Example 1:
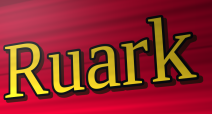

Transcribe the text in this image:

Ruark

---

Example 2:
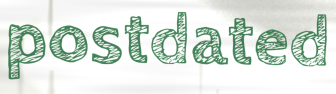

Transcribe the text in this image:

postdated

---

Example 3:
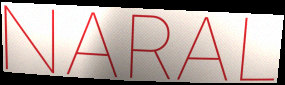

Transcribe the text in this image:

NARAL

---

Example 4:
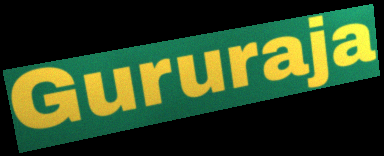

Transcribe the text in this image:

Gururaja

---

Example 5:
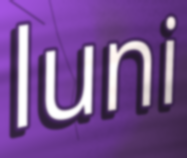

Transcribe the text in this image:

luni